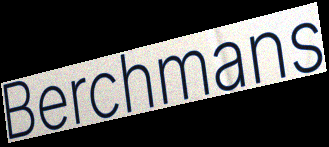
Berchmans